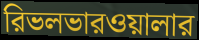
রিভলভারওয়ালার